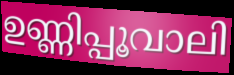
ഉണ്ണിപ്പൂവാലി